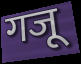
गजू